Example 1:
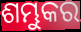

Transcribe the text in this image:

ଶମ୍ଭୁକର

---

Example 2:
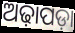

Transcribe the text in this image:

ଅଢ଼ାପଡ଼ା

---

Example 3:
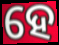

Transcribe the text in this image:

ହେ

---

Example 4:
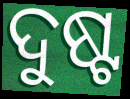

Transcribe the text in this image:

ଦୁଷ୍ଟ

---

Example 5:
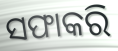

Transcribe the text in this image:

ସଫାକରି